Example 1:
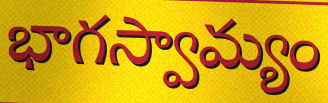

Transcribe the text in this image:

భాగస్వామ్యం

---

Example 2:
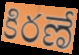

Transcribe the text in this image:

కిరణే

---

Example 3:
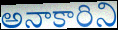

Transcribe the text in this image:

అనాకారిని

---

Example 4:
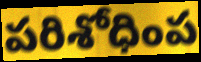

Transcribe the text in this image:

పరిశోధింప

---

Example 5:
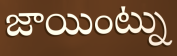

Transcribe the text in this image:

జాయింట్ను